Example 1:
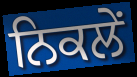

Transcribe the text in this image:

ਨਿਕਲੇਂ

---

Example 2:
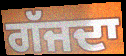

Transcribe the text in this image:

ਗੱਜਦਾ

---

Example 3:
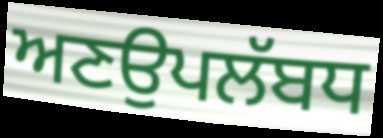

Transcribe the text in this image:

ਅਣਉਪਲੱਬਧ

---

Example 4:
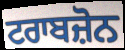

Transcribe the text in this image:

ਟਰਾਬਜ਼ੋਨ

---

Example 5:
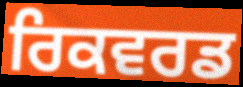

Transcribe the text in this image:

ਰਿਕਵਰਡ